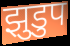
झुडुप